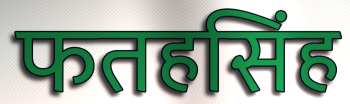
फतहसिंह